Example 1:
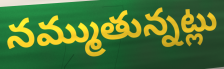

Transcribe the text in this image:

నమ్ముతున్నట్లు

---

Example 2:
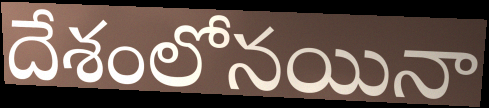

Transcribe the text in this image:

దేశంలోనయినా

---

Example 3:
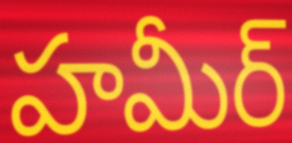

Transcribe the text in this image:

హమీర్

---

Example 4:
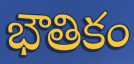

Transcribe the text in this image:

భౌతికం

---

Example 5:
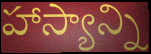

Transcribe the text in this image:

హాస్యాన్ని